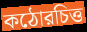
কঠোরচিত্ত